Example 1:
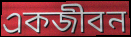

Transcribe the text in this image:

একজীবন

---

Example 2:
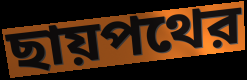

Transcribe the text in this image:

ছায়পথের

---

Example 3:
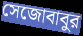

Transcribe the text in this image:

সেজোবাবুর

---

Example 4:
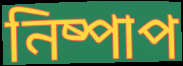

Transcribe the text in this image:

নিষ্পাপ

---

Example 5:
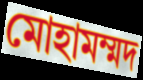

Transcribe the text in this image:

মোহামম্মদ